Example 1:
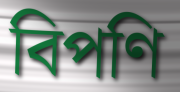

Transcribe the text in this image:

বিপণি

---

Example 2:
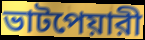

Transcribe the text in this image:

ভাটপেয়ারী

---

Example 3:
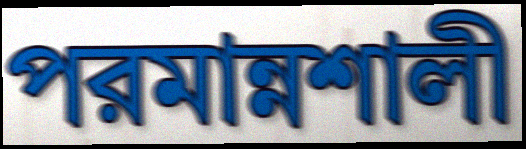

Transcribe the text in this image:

পরমান্নশালী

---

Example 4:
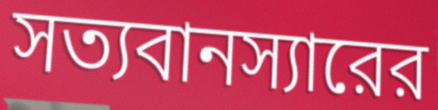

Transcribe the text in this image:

সত্যবানস্যারের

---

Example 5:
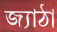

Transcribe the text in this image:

জ্যাঠা